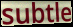
subtle